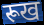
रूख